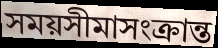
সময়সীমাসংক্রান্ত